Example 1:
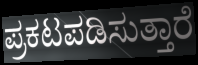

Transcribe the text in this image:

ಪ್ರಕಟಪಡಿಸುತ್ತಾರೆ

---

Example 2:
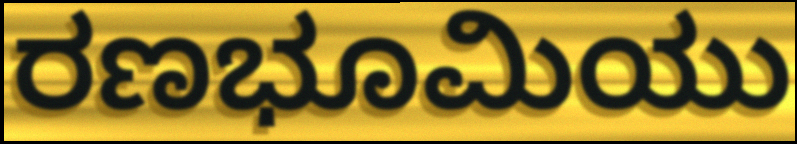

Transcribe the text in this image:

ರಣಭೂಮಿಯು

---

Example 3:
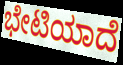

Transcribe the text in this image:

ಭೇಟಿಯಾದೆ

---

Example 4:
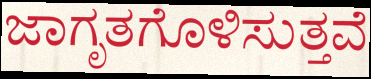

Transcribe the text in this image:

ಜಾಗೃತಗೊಳಿಸುತ್ತವೆ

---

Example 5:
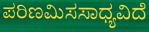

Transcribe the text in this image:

ಪರಿಣಮಿಸಸಾಧ್ಯವಿದೆ